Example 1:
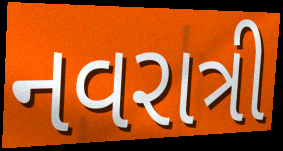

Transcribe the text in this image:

નવરાત્રી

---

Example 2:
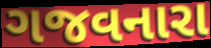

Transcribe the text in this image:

ગજવનારા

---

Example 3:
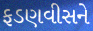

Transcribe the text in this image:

ફડણવીસને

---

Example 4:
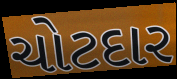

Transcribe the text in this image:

ચોટદાર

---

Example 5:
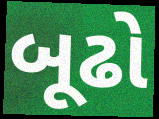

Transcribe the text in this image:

બૂઢો